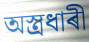
অস্ত্ৰধাৰী